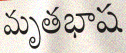
మృతభాష